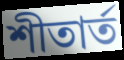
শীতার্ত